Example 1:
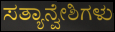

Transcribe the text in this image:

ಸತ್ಯಾನ್ವೇಶಿಗಳು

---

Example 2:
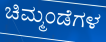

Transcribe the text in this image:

ಚಿಮ್ಮಂಡೆಗಳ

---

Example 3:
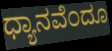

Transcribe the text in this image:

ಧ್ಯಾನವೆಂದೂ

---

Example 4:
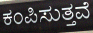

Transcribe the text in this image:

ಕಂಪಿಸುತ್ತವೆ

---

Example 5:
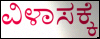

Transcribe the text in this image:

ವಿಳಾಸಕ್ಕೆ